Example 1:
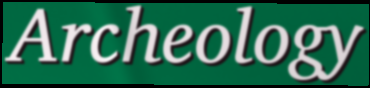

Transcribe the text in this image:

Archeology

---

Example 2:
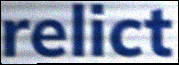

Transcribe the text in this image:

relict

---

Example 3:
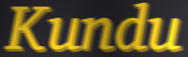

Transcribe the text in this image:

Kundu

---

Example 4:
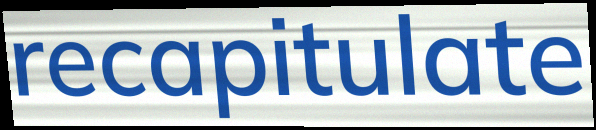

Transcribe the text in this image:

recapitulate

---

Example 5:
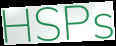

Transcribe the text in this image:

HSPs